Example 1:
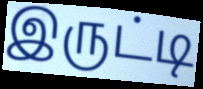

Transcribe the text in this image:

இருட்டி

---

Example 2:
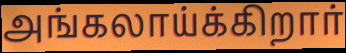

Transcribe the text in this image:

அங்கலாய்க்கிறார்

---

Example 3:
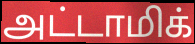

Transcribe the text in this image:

அட்டாமிக்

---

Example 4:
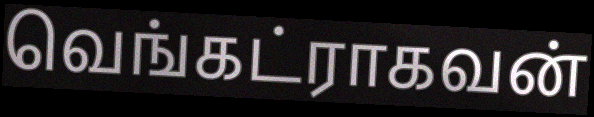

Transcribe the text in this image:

வெங்கட்ராகவன்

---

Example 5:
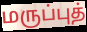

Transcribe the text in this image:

மருப்புத்